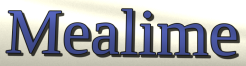
Mealime